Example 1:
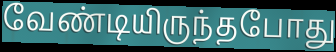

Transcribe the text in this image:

வேண்டியிருந்தபோது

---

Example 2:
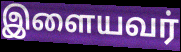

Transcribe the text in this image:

இளையவர்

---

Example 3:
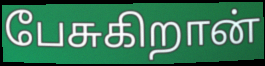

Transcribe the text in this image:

பேசுகிறான்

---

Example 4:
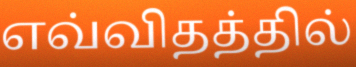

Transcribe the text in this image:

எவ்விதத்தில்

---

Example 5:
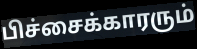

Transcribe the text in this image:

பிச்சைக்காரரும்